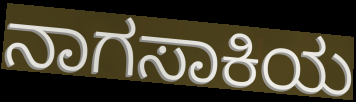
ನಾಗಸಾಕಿಯ